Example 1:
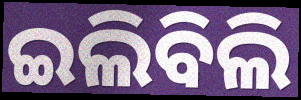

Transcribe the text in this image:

ଇଲିବିଲି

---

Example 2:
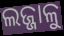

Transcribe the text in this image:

ଲଜ୍ଜାଳୁ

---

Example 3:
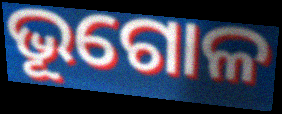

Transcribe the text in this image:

ଭୂଗୋଳ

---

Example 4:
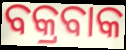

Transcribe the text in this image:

ବକ୍ରବାକ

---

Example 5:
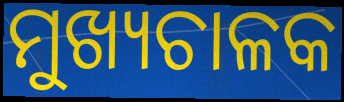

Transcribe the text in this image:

ମୁଖ୍ୟଚାଳକ